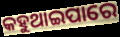
କହୁଥାଇପାରେ